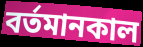
বর্তমানকাল